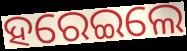
ହରେଇଲେ